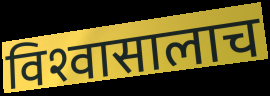
विश्वासालाच